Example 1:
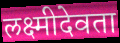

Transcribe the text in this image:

लक्ष्मीदेवता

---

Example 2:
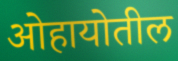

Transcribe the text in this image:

ओहायोतील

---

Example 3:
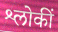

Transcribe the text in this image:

श्लोकीं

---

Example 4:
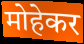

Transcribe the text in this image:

मोहेकर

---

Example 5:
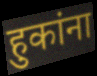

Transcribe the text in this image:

हुकांना